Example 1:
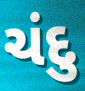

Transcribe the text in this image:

ચંદુ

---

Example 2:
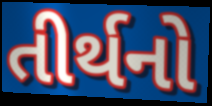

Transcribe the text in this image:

તીર્થનો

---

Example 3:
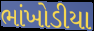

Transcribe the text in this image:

ભાંખોડીયા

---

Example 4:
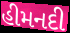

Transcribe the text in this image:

હીમનદી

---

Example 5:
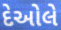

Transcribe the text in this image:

દેઓલે